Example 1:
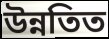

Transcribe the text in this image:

উন্নতিত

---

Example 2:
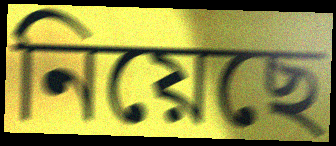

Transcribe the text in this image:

নিয়েছে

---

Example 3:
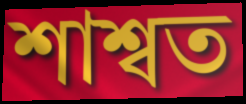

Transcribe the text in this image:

শাশ্বত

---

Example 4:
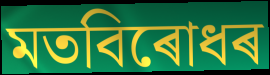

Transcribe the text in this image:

মতবিৰোধৰ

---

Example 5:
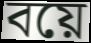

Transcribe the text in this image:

বয়ে